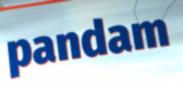
pandam